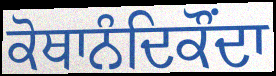
ਕੋਥਾਨੰਦਿਕੌਂਦਾ